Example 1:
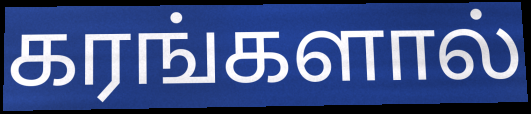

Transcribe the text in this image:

கரங்களால்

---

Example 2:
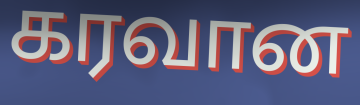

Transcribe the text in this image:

கரவான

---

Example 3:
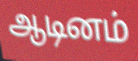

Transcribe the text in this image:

ஆடினம்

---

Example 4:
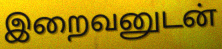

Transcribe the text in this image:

இறைவனுடன்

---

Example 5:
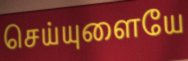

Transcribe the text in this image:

செய்யுளையே